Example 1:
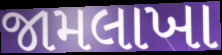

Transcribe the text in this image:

જામલાખા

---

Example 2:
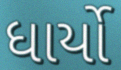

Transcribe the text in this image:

ધાર્યો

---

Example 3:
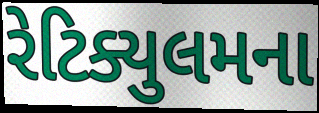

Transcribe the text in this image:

રેટિક્યુલમના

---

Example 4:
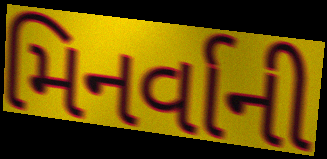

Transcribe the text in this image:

મિનર્વાની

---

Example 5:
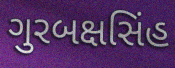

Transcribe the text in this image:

ગુરબક્ષસિંહ